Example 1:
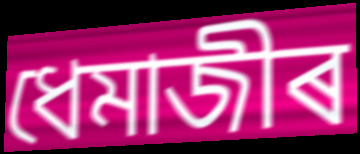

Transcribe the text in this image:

ধেমাজীৰ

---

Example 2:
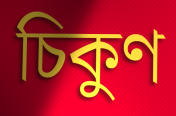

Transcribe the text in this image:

চিকুণ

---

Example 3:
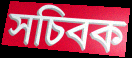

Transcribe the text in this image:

সচিবক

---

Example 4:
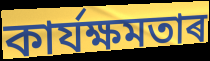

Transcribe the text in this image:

কাৰ্যক্ষমতাৰ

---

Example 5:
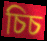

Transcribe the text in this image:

চিচ